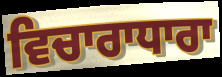
ਵਿਚਾਰਾਧਾਰਾ